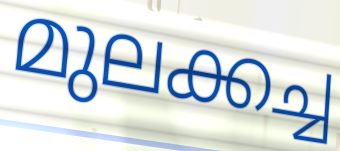
മുലക്കച്ച